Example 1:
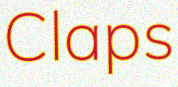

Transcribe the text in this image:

Claps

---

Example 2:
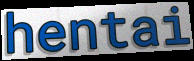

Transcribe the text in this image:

hentai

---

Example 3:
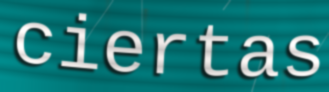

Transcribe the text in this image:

ciertas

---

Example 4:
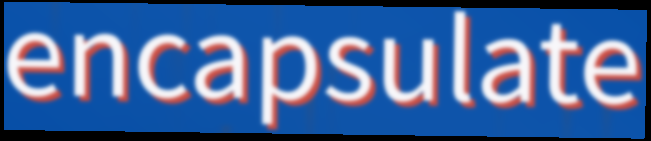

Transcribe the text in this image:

encapsulate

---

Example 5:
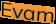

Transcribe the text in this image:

Evam